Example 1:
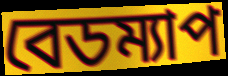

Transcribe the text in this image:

বেডম্যাপ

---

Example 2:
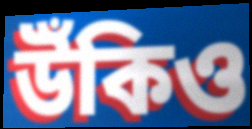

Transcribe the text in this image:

উঁকিও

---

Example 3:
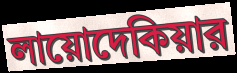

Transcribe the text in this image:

লায়োদেকিয়ার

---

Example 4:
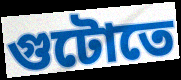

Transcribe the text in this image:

গুটোতে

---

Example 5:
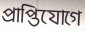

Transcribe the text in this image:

প্রাপ্তিযোগে